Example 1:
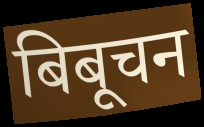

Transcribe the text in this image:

बिबूचन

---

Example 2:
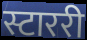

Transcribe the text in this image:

स्टाररी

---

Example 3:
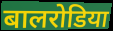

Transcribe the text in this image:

बालरोडिया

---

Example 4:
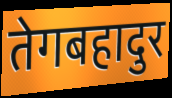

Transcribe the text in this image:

तेगबहादुर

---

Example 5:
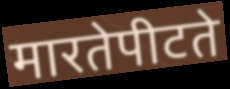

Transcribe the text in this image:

मारतेपीटते